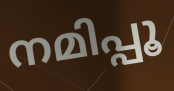
നമിപ്പൂ